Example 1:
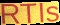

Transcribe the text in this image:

RTIs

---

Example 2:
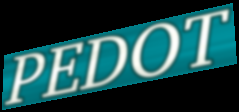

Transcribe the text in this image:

PEDOT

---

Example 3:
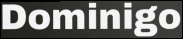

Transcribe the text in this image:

Dominigo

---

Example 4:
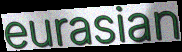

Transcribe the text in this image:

eurasian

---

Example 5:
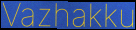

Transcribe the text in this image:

Vazhakku